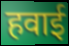
हवाई